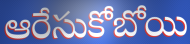
ఆరేసుకోబోయి